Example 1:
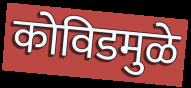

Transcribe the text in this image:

कोविडमुळे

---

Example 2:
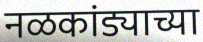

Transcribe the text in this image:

नळकांड्याच्या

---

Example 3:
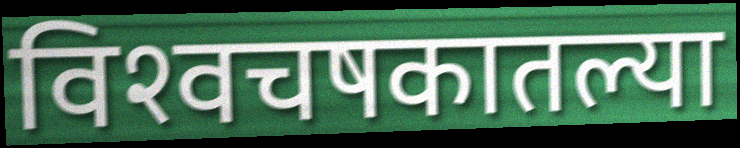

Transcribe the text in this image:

विश्वचषकातल्या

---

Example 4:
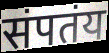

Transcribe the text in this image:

संपतंय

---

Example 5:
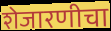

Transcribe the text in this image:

शेजारणीचा